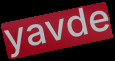
yavde